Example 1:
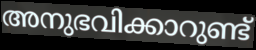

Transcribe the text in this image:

അനുഭവിക്കാറുണ്ട്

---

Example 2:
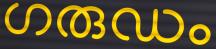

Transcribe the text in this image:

ഗരുഡം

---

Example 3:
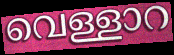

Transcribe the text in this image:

വെള്ളാറ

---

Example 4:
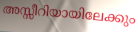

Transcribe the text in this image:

അസ്സീറിയായിലേക്കും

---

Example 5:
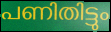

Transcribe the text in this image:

പണിതിട്ടും